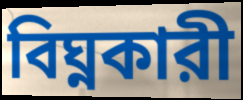
বিঘ্নকারী